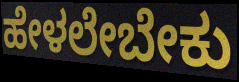
ಹೇಳಲೇಬೇಕು